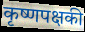
कृष्णपक्षकी